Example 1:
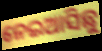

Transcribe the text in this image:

ନେଇଆସିଛୁ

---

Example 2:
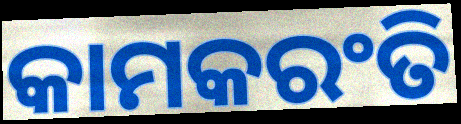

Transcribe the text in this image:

କାମକରଂତି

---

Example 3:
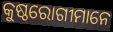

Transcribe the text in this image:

କୁଷ୍ଠରୋଗୀମାନେ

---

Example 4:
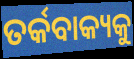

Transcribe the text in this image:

ତର୍କବାକ୍ୟକୁ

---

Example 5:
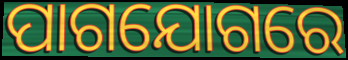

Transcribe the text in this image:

ପାଗଯୋଗରେ